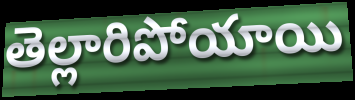
తెల్లారిపోయాయి